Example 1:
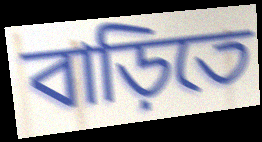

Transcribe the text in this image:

বাড়িতে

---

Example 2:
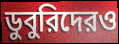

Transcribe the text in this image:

ডুবুরিদেরও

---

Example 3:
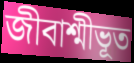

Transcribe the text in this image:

জীবাশ্মীভূত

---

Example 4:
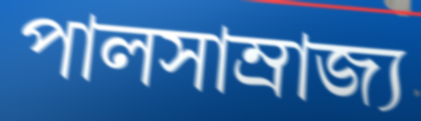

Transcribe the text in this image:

পালসাম্রাজ্য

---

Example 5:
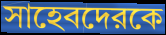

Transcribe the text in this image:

সাহেবদেরকে